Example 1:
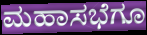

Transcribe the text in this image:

ಮಹಾಸಭೆಗೂ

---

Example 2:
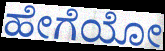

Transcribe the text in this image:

ಹೇಗೆಯೋ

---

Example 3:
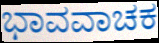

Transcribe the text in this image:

ಭಾವವಾಚಕ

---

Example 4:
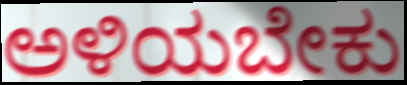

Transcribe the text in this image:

ಅಳಿಯಬೇಕು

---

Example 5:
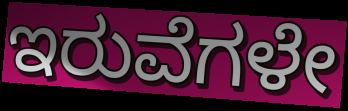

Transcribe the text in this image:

ಇರುವೆಗಳೇ